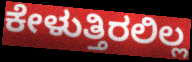
ಕೇಳುತ್ತಿರಲಿಲ್ಲ